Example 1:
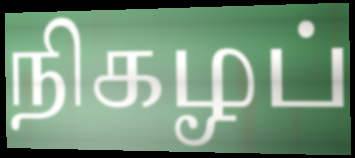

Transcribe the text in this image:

நிகழப்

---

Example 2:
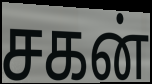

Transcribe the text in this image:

சகன்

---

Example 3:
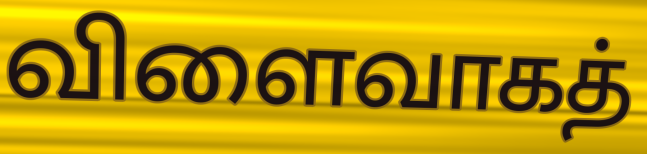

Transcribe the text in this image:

விளைவாகத்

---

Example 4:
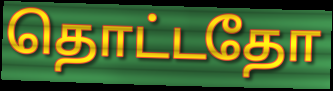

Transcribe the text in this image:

தொட்டதோ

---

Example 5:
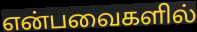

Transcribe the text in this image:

என்பவைகளில்